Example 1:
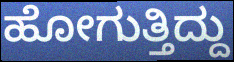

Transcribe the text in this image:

ಹೋಗುತ್ತಿದ್ದು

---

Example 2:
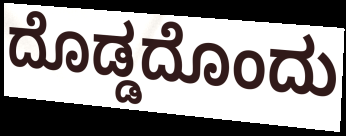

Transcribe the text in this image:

ದೊಡ್ಡದೊಂದು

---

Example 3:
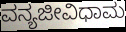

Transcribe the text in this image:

ವನ್ಯಜೀವಿಧಾಮ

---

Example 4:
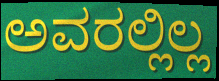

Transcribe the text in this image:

ಅವರಲ್ಲಿಲ್ಲ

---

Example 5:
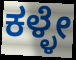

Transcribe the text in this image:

ಕಳ್ಳೇ